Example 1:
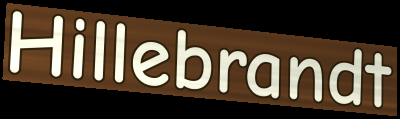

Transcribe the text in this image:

Hillebrandt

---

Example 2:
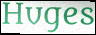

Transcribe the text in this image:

Huges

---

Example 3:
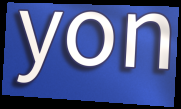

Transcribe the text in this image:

yon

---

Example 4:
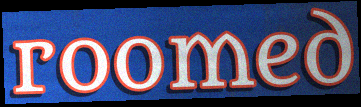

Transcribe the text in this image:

roomed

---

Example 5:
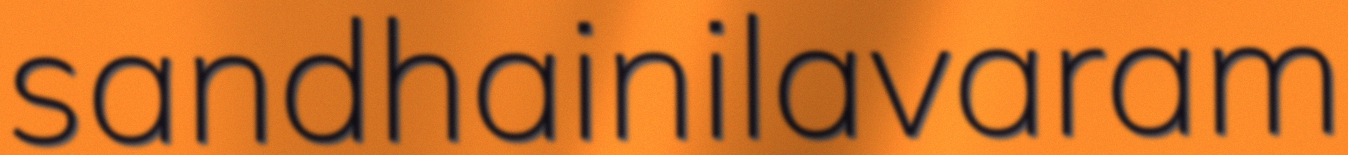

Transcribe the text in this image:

sandhainilavaram